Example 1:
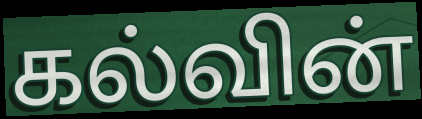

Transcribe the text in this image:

கல்வின்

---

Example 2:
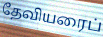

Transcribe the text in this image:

தேவியரைப்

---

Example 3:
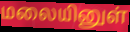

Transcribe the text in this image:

மலையினுள்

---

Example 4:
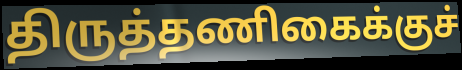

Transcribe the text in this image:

திருத்தணிகைக்குச்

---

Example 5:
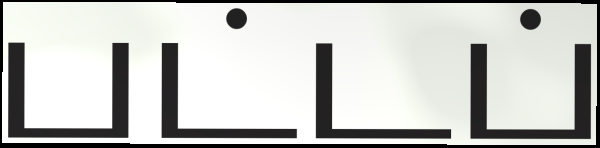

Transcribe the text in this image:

பட்டப்